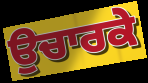
ਉਚਾਰਕੇ